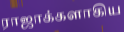
ராஜாக்களாகிய